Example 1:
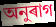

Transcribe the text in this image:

অনুৰাগ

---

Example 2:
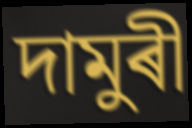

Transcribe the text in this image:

দামুৰী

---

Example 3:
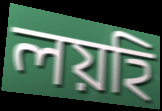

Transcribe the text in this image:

লয়হি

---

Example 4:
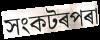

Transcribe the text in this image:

সংকটৰপৰা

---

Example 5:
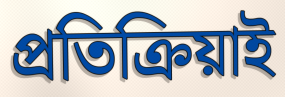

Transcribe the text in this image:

প্ৰতিক্ৰিয়াই